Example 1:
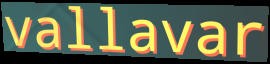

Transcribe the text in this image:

vallavar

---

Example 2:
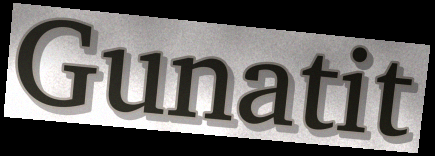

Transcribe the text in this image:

Gunatit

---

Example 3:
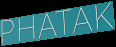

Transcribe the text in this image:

PHATAK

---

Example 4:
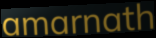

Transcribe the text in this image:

amarnath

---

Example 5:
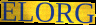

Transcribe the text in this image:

ELORG